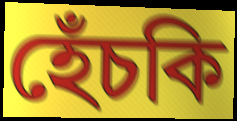
হেঁচকি